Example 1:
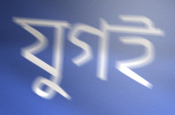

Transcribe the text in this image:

যুগই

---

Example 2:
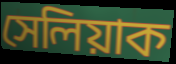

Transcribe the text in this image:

সেলিয়াক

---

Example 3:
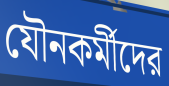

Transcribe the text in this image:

যৌনকর্মীদের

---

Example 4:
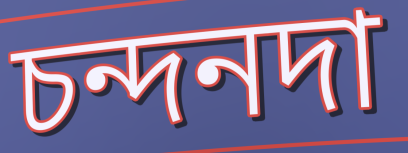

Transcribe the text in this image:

চন্দনদা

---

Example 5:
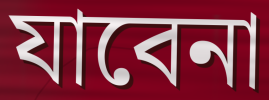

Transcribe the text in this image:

যাবেনা